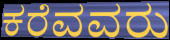
ಕರೆವವರು